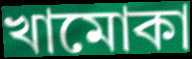
খামোকা